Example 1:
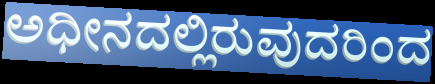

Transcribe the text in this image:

ಅಧೀನದಲ್ಲಿರುವುದರಿಂದ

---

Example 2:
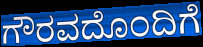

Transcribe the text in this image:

ಗೌರವದೊಂದಿಗೆ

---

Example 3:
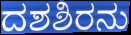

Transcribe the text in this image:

ದಶಶಿರನು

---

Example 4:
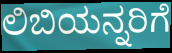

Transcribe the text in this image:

ಲಿಬಿಯನ್ನರಿಗೆ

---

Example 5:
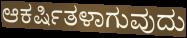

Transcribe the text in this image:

ಆಕರ್ಷಿತಳಾಗುವುದು